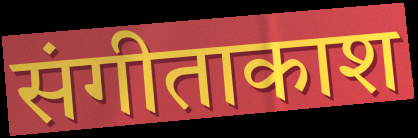
संगीताकाश